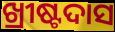
ଖ୍ରୀଷ୍ଟଦାସ